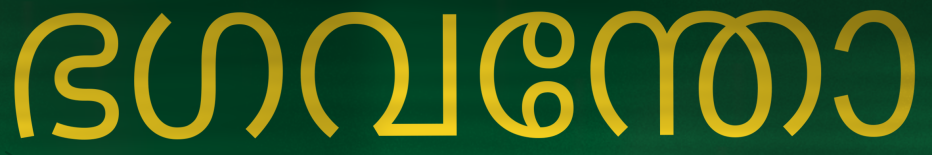
ഭഗവന്തോ